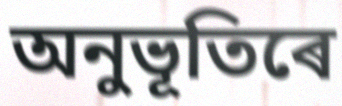
অনুভূতিৰে